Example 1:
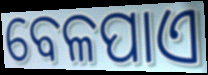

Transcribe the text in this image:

ବେଳପାଏ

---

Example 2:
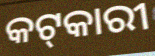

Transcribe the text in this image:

କଟ୍‌କାରୀ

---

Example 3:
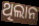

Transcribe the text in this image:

ଥିଲାନ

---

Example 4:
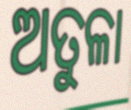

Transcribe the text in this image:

ଅତୁଳା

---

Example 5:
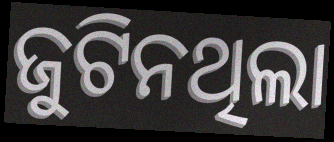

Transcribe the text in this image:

ଜୁଟିନଥିଲା